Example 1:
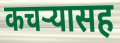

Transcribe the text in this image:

कचऱ्यासह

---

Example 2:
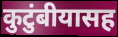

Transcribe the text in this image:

कुटुंबीयासह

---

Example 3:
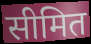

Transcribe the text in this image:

सीमित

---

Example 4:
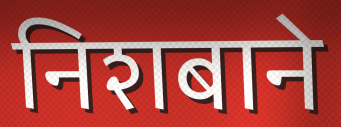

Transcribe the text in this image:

निशबाने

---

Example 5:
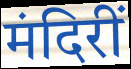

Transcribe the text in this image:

मंदिरीं